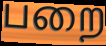
பறை